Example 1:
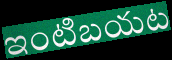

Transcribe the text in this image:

ఇంటిబయట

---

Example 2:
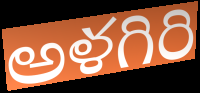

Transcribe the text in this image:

అళగిరి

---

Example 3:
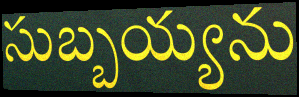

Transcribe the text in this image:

సుబ్బయ్యను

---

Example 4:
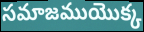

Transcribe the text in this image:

సమాజముయొక్క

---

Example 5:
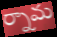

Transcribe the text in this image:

ర్నామ